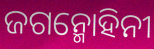
ଜଗନ୍ମୋହିନୀ